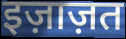
इज़ाज़त